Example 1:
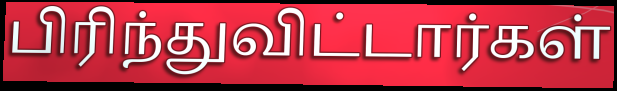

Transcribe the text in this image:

பிரிந்துவிட்டார்கள்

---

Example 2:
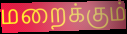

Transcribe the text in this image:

மறைக்கும்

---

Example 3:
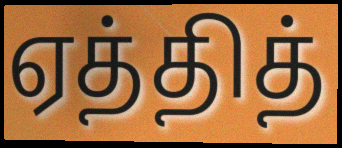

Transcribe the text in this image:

ஏத்தித்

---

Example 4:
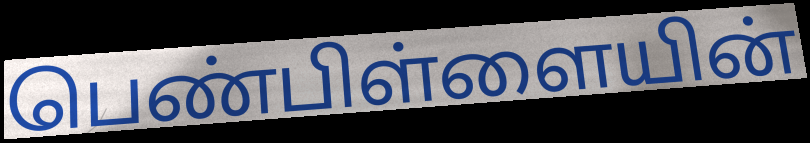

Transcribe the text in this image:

பெண்பிள்ளையின்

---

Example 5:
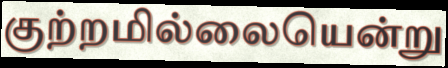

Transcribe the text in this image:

குற்றமில்லையென்று